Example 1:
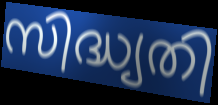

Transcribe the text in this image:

സിദ്ധ്യതി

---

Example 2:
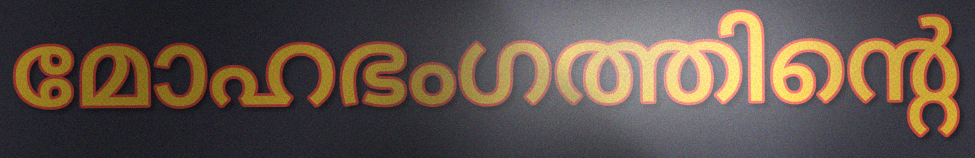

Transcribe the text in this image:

മോഹഭംഗത്തിന്റെ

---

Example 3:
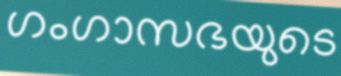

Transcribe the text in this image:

ഗംഗാസഭയുടെ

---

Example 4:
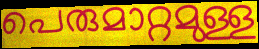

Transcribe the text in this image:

പെരുമാറ്റമുള്ള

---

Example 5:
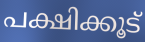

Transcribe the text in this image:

പക്ഷിക്കൂട്